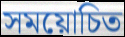
সময়োচিত